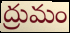
ద్రుమం